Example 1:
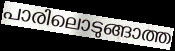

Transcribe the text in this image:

പാരിലൊടുങ്ങാത്ത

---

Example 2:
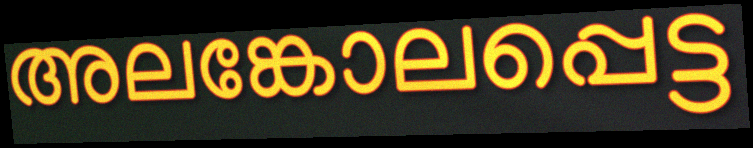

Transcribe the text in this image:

അലങ്കോലപ്പെട്ട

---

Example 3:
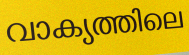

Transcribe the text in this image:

വാക്യത്തിലെ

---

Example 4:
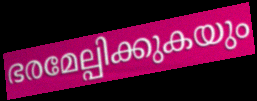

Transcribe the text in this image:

ഭരമേല്പിക്കുകയും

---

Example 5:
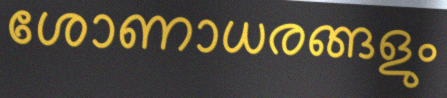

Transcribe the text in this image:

ശോണാധരങ്ങളും